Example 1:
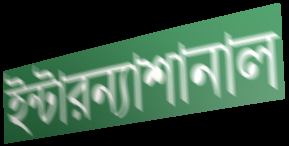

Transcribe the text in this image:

ইন্টারন্যাশানাল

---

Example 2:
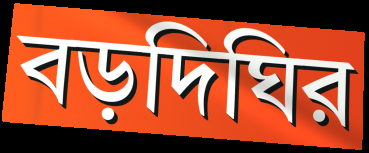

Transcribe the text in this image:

বড়দিঘির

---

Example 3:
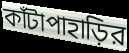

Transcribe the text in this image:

কাঁটাপাহাড়ির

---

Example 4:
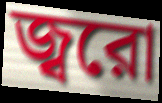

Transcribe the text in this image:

জ্বরো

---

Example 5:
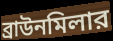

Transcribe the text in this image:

ব্রাউনমিলার